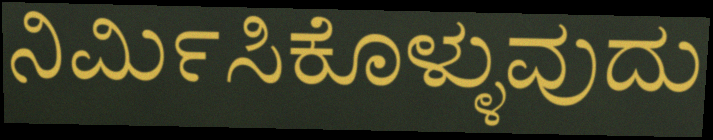
ನಿರ್ಮಿಸಿಕೊಳ್ಳುವುದು